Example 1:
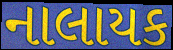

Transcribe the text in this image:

નાલાયક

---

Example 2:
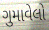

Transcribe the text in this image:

ગુમાવેલો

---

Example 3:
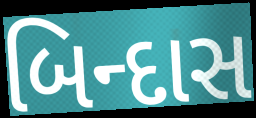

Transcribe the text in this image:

બિન્દાસ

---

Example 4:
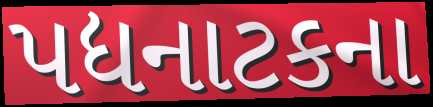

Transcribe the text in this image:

પદ્યનાટકના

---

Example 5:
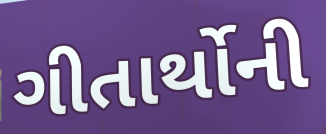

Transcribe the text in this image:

ગીતાર્થોની